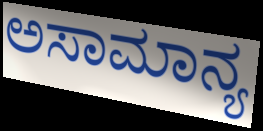
ಅಸಾಮಾನ್ಯ